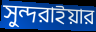
সুন্দরাইয়ার